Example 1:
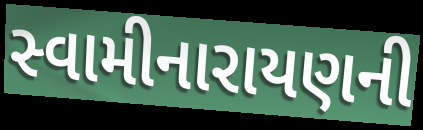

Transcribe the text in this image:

સ્વામીનારાયણની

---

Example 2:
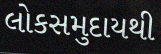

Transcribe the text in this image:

લોકસમુદાયથી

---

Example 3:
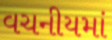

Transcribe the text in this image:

વચનીયમાં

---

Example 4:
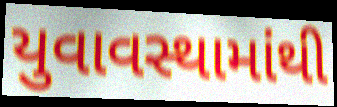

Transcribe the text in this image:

યુવાવસ્થામાંથી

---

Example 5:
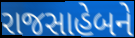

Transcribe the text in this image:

રાજસાહેબને